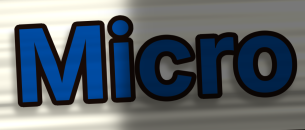
Micro